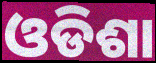
ଓଡିଶା